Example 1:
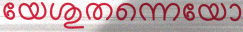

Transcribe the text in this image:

യേശുതന്നെയോ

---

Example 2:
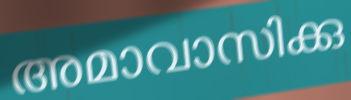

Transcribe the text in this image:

അമാവാസിക്കു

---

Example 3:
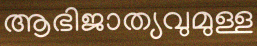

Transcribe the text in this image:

ആഭിജാത്യവുമുള്ള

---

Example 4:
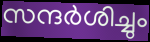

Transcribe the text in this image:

സന്ദർശിച്ചും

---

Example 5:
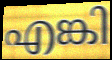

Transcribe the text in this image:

എങ്കി